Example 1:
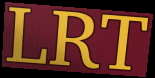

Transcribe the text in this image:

LRT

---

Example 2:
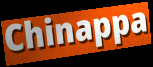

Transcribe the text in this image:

Chinappa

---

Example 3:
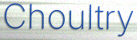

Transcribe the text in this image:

Choultry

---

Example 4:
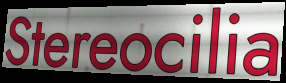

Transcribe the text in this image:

Stereocilia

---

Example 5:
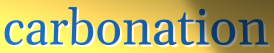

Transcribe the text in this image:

carbonation